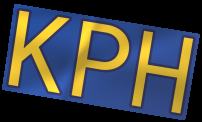
KPH